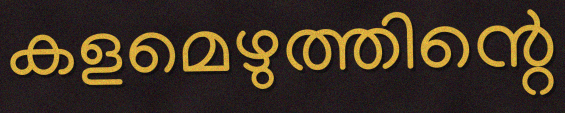
കളമെഴുത്തിന്റെ